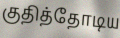
குதித்தோடிய